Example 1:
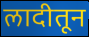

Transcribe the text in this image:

लादीतून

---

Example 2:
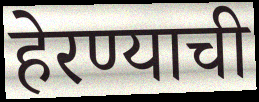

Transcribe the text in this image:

हेरण्याची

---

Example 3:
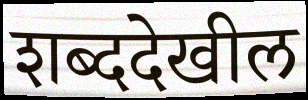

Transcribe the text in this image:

शब्ददेखील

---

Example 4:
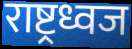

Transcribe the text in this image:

राष्ट्रध्वज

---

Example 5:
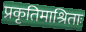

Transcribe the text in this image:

प्रकृतिमाश्रिताः